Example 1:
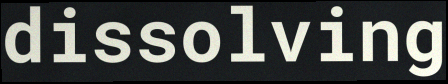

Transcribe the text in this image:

dissolving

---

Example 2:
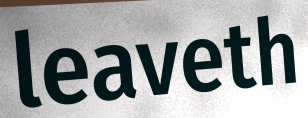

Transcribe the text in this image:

leaveth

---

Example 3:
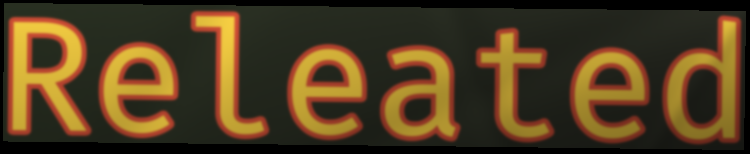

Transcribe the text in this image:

Releated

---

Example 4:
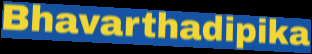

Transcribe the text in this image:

Bhavarthadipika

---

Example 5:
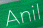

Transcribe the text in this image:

Anil